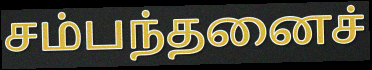
சம்பந்தனைச்